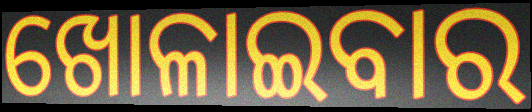
ଖୋଳାଇବାର